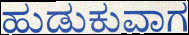
ಹುಡುಕುವಾಗ